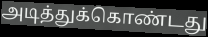
அடித்துக்கொண்டது